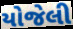
યોજેલી